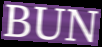
BUN